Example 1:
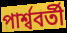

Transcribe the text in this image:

পার্শ্ববর্তী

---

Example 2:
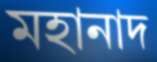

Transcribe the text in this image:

মহানাদ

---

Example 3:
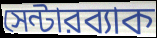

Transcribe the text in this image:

সেন্টারব্যাক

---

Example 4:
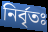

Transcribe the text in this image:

নির্বৃতঃ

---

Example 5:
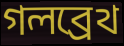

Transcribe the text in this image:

গলব্রেথ